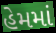
હેમમાં